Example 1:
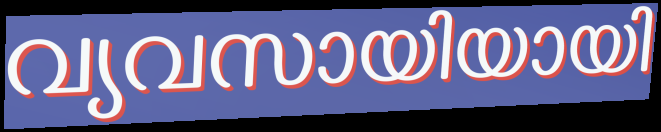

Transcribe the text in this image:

വ്യവസായിയായി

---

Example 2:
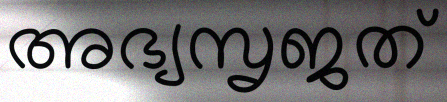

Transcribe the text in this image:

അഭ്യസൃജത്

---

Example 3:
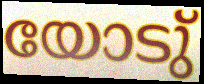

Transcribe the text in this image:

യോടു്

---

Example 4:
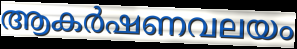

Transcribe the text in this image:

ആകർഷണവലയം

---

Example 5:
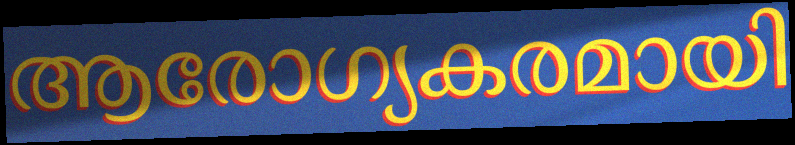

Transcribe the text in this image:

ആരോഗ്യകരമായി